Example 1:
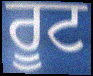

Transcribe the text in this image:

ਰੂਟ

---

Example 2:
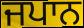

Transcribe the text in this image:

ਜਪਾਨ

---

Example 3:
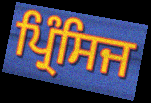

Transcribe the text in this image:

ਪ੍ਰਿੰਸਿਜ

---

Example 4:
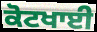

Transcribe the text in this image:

ਕੋਟਖਾਈ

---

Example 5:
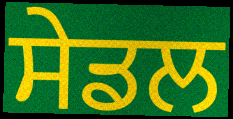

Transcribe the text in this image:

ਸੇਡਲ